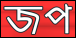
জপ